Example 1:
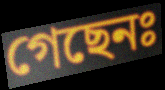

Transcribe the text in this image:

গেছেনঃ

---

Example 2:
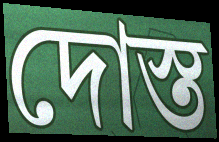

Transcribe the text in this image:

দোস্ত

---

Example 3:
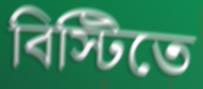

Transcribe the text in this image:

বিস্টিতে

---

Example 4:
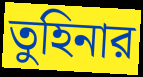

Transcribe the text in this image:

তুহিনার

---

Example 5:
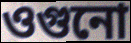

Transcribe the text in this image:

ওগুনো